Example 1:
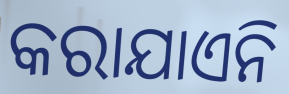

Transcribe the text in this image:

କରାଯାଏନି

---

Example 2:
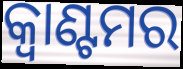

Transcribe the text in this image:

କ୍ୱାଣ୍ଟମର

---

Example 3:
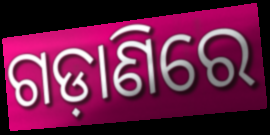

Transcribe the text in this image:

ଗଡ଼ାଣିରେ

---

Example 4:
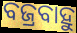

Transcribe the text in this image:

ବଜ୍ରବାହୁ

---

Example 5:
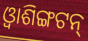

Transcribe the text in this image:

ଓ୍ୱାଶିଙ୍ଗଟନ୍